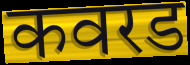
कवरड